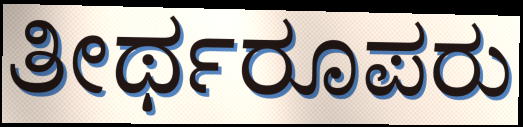
ತೀರ್ಥರೂಪರು